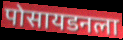
पोसायडनला